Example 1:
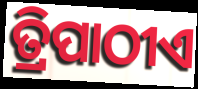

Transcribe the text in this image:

ତ୍ରିପାଠୀଏ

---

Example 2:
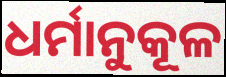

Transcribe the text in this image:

ଧର୍ମାନୁକୂଳ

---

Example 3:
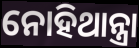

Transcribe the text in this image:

ନୋହିଥାନ୍ତ୍ରା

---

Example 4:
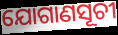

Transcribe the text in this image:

ଯୋଗାଣସୂଚୀ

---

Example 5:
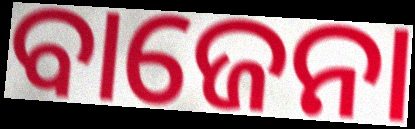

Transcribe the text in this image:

ବାଜେନା